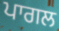
ਪਾਗਲ